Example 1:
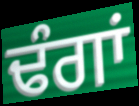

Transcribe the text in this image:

ਢੰਗਾਂ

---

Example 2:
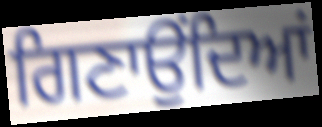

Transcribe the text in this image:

ਗਿਣਾਉਂਦਿਆਂ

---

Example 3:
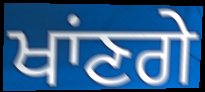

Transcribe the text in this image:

ਖਾਂਣਗੇ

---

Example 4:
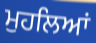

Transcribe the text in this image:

ਮੁਹਲਿਆਂ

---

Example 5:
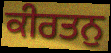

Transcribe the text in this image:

ਕੀਰਤਨੁ